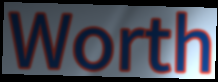
Worth